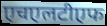
एचएलटीएफ